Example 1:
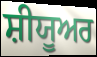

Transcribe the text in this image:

ਸ਼ੀਯੂਅਰ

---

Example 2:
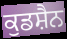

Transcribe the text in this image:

ਕੁਡਸ਼ੈਨ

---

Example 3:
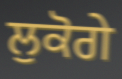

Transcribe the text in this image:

ਲੁਕੋਗੇ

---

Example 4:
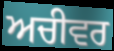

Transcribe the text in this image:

ਅਚੀਵਰ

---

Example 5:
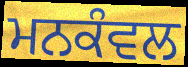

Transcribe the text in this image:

ਮਨਕੰਵਲ